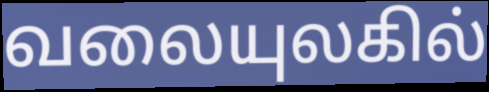
வலையுலகில்